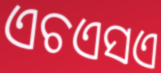
ଏଚଏସଏ